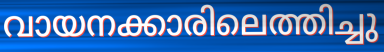
വായനക്കാരിലെത്തിച്ചു